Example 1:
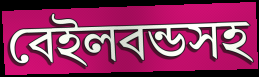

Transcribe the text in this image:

বেইলবন্ডসহ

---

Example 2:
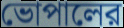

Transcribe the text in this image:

ভোপালের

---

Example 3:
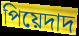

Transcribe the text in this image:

পিয়েদাদ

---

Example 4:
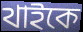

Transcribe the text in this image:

থাইকে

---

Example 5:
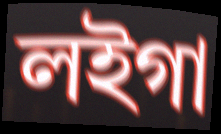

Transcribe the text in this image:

লইগা